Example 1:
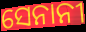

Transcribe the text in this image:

ସେନାନୀ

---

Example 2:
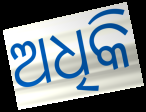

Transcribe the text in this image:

ଅଧିକି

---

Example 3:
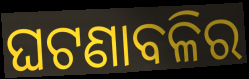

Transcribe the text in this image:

ଘଟଣାବଳିର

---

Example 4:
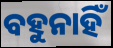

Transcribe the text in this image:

ବହୁନାହିଁ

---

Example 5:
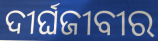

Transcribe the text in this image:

ଦୀର୍ଘଜୀବୀର